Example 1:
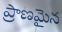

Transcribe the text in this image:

ప్రాణమైన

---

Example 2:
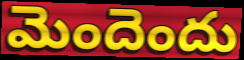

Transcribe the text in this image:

మెందెందు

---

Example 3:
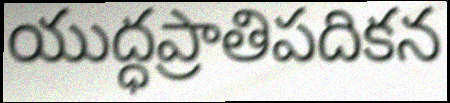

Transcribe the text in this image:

యుద్ధప్రాతిపదికన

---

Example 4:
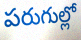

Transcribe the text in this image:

పరుగుల్లో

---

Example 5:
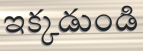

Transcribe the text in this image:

ఇక్కడుండి